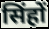
सिंहों